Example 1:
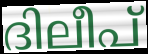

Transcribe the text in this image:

ദിലീപ്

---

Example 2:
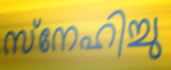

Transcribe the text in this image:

സ്‌നേഹിച്ചു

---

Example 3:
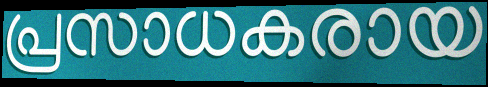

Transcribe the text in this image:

പ്രസാധകരായ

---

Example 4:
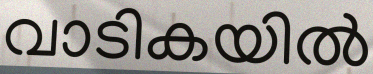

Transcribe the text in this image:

വാടികയിൽ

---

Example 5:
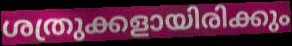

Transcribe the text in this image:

ശത്രുക്കളായിരിക്കും